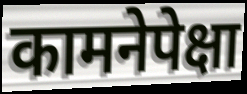
कामनेपेक्षा